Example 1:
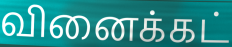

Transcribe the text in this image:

வினைக்கட்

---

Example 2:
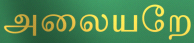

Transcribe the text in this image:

அலையறே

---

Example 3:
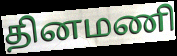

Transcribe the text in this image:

தினமணி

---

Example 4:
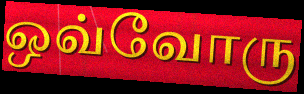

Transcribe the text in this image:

ஒவ்வோரு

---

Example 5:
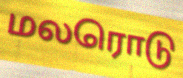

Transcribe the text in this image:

மலரொடு